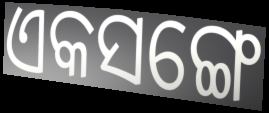
ଏକସଙ୍ଗେ